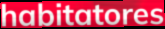
habitatores